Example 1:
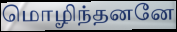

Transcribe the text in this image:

மொழிந்தனனே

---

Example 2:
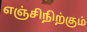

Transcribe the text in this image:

எஞ்சிநிற்கும்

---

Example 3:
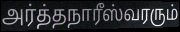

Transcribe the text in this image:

அர்த்தநாரீஸ்வரரும்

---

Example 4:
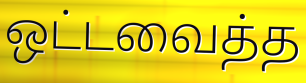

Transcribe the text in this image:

ஒட்டவைத்த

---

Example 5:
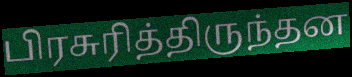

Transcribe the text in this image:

பிரசுரித்திருந்தன